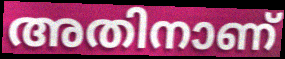
അതിനാണ്